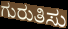
ಗುರುತಿಸು